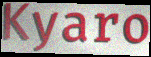
Kyaro